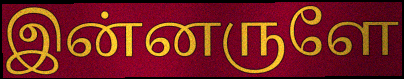
இன்னருளே